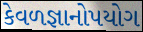
કેવળજ્ઞાનોપયોગ